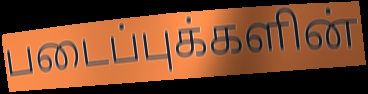
படைப்புக்களின்